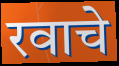
रवाचे